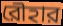
রৌহার